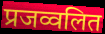
प्रजव्वलित